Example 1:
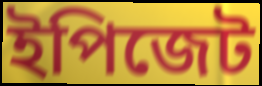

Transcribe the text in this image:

ইপিজেট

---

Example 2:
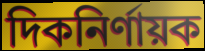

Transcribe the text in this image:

দিকনির্ণায়ক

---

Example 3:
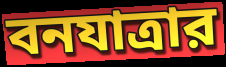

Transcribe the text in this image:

বনযাত্রার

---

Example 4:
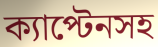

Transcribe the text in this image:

ক্যাপ্টেনসহ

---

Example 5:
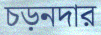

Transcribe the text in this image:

চড়নদার